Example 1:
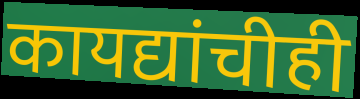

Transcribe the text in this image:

कायद्यांचीही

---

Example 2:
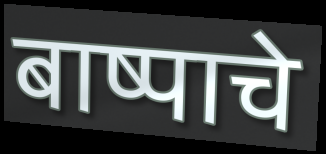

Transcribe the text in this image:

बाष्पाचे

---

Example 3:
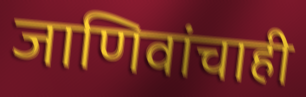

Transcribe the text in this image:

जाणिवांचाही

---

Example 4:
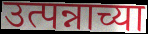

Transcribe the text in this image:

उत्पन्नाच्या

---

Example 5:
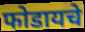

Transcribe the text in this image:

फोडायचे